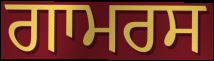
ਗਾਮਰਸ